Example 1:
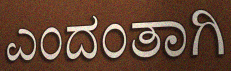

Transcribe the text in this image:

ಎಂದಂತಾಗಿ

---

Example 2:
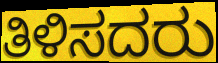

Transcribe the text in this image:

ತಿಳಿಸದರು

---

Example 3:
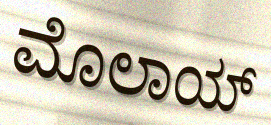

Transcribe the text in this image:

ಮೊಲಾಯ್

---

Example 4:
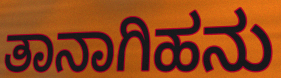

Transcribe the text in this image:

ತಾನಾಗಿಹನು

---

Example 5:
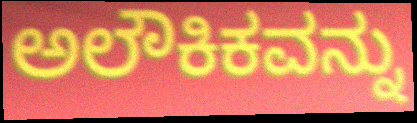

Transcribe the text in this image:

ಅಲೌಕಿಕವನ್ನು